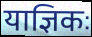
याज्ञिकः